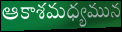
ఆకాశమధ్యమున